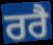
ਰਰੈ